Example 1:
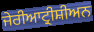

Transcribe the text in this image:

ਜੇਰੀਆਟ੍ਰੀਸ਼ੀਅਨ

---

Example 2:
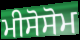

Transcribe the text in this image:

ਮੀਸੋਸੋਮ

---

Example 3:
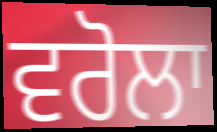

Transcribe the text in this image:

ਵਰੋਲਾ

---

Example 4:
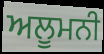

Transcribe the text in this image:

ਅਲੂਮਨੀ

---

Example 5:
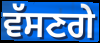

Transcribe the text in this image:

ਵੱਸਣਗੇ